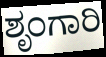
ಶೃಂಗಾರಿ